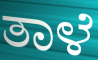
ತಾಳೆ